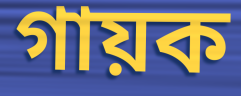
গায়ক